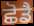
ਛੋਡੈ